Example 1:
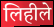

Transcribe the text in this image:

लिहीले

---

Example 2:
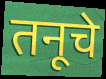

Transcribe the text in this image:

तनूचे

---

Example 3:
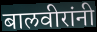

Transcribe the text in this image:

बालवीरांनी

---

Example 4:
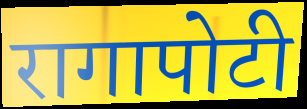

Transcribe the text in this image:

रागापोटी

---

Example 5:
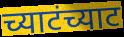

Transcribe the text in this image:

च्याटंच्याट